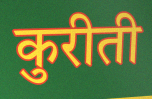
कुरीती